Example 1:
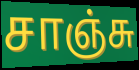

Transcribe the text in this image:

சாஞ்சு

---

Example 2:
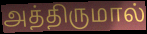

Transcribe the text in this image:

அத்திருமால்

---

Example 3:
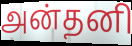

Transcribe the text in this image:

அன்தனி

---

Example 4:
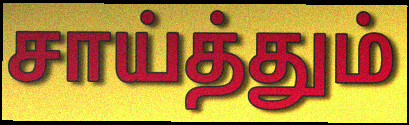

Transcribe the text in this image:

சாய்த்தும்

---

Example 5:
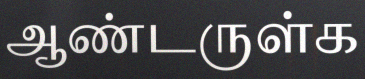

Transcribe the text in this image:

ஆண்டருள்க